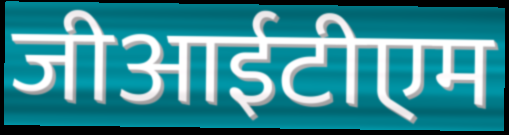
जीआईटीएम